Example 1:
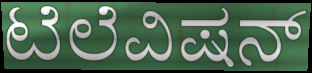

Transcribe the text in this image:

ಟೆಲೆವಿಷನ್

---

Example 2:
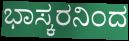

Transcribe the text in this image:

ಭಾಸ್ಕರನಿಂದ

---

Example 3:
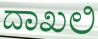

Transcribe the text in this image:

ದಾಖಲಿ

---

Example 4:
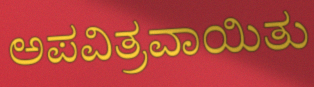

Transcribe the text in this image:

ಅಪವಿತ್ರವಾಯಿತು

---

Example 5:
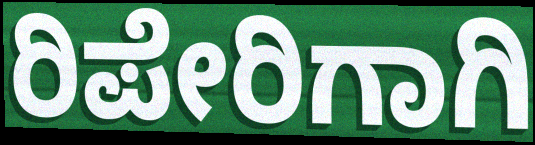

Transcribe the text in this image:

ರಿಪೇರಿಗಾಗಿ